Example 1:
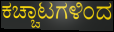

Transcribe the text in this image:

ಕಚ್ಚಾಟಗಳಿಂದ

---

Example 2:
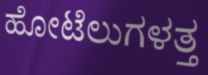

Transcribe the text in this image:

ಹೋಟೆಲುಗಳತ್ತ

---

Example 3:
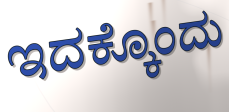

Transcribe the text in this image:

ಇದಕ್ಕೊಂದು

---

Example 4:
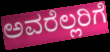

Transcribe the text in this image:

ಅವರೆಲ್ಲರಿಗೆ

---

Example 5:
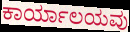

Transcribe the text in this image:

ಕಾರ್ಯಾಲಯವು